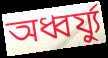
অধ্বর্য্যু